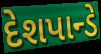
દેશપાન્ડે